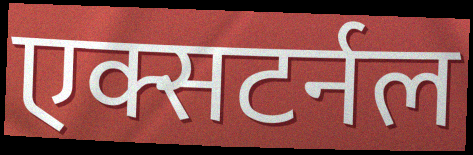
एक्सटर्नल